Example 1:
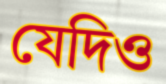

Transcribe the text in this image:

যেদিও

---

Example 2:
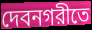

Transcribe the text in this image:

দেবনগরীতে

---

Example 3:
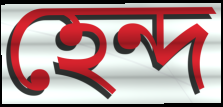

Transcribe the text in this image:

হেন্দ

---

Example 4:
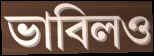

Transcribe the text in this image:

ভাবিলও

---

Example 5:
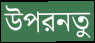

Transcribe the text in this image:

উপরনতু